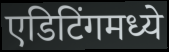
एडिटिंगमध्ये